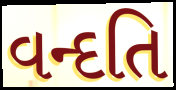
વન્દતિ